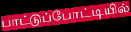
பாட்டுப்போட்டியில்